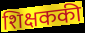
शिक्षककी